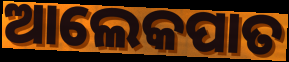
ଆଲେକପାତ